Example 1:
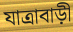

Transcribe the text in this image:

যাত্রাবাড়ী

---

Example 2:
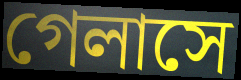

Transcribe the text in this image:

গেলাসে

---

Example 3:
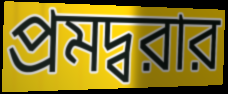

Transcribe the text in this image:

প্রমদ্বরার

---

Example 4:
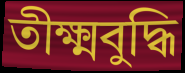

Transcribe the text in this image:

তীক্ষ্মবুদ্ধি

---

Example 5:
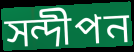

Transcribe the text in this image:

সন্দীপন